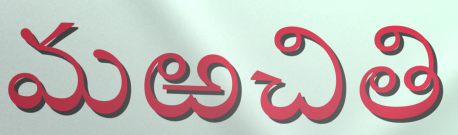
మఱచితి